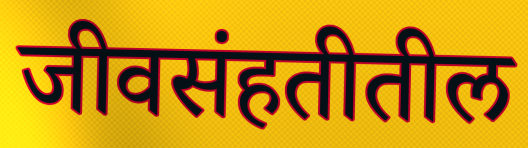
जीवसंहतीतील